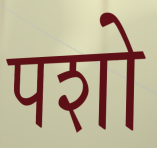
पशो